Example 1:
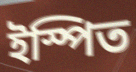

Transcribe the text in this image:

ইস্পিত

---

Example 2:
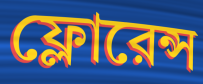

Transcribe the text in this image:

ফ্লোরেন্স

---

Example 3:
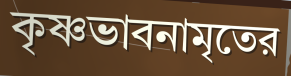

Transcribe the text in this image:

কৃষ্ণভাবনামৃতের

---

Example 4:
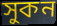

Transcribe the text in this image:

সুকন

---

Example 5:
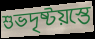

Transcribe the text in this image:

শুভদৃষ্টয়স্তে